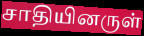
சாதியினருள்